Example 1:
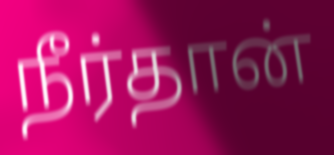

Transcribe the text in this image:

நீர்தான்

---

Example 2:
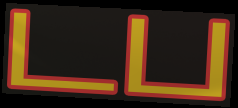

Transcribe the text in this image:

டப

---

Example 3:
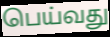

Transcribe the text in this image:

பெய்வது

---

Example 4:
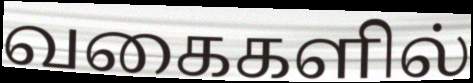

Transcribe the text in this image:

வகைகளில்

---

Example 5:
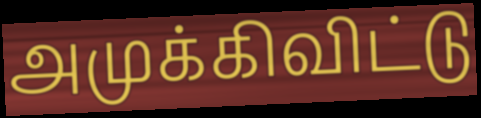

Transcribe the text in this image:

அமுக்கிவிட்டு